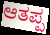
ಆತಪ್ಪ